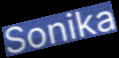
Sonika